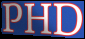
PHD